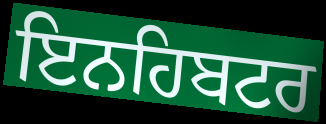
ਇਨਹਿਬਟਰ